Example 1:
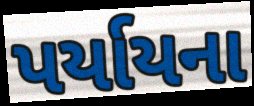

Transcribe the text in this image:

પર્યાયના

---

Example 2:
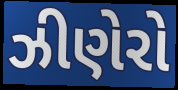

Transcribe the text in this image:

ઝીણેરો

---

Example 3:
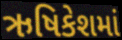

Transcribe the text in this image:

ઋષિકેશમાં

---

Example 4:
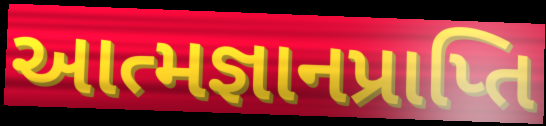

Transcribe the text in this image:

આત્મજ્ઞાનપ્રાપ્તિ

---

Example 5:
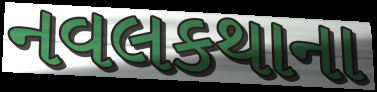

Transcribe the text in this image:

નવલકથાના